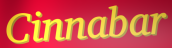
Cinnabar